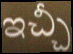
ఇచ్చీ